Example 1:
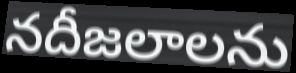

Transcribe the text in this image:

నదీజలాలను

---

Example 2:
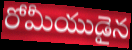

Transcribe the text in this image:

రోమీయుడైన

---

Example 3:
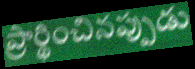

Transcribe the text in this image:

ప్రార్థించినప్పుడు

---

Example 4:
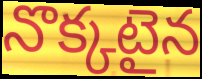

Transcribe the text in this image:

నొక్కటైన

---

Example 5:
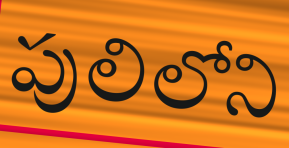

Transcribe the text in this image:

పులిలోని